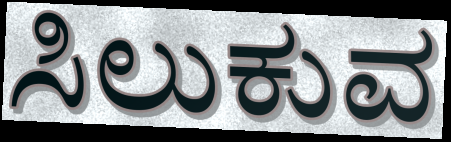
ಸಿಲುಕುವ